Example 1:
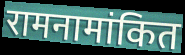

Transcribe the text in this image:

रामनामांकित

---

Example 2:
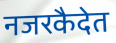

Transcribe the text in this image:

नजरकैदेत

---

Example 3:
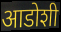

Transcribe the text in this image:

आडोशी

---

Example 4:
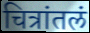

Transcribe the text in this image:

चित्रांतलं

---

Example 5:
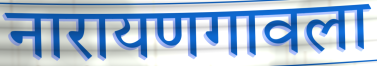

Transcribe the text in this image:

नारायणगावला